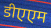
डीएएम